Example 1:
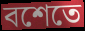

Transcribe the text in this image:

বশেতে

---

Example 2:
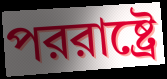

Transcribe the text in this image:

পররাষ্ট্রে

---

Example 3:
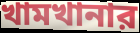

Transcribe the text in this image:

খামখানার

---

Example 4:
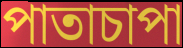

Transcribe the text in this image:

পাতাচাপা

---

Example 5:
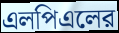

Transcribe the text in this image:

এলপিএলের